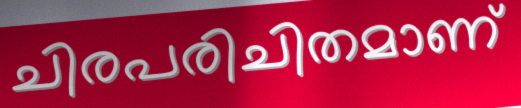
ചിരപരിചിതമാണ്